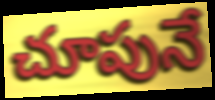
చూపునే